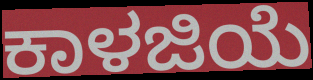
ಕಾಳಜಿಯೆ